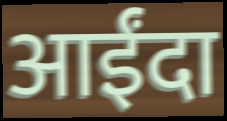
आईंदा